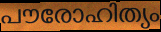
പൗരോഹിത്യം